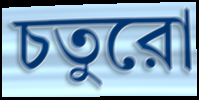
চতুরো